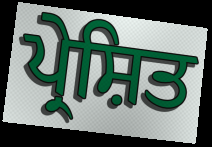
ਪ੍ਰੇਸ਼ਿਤ